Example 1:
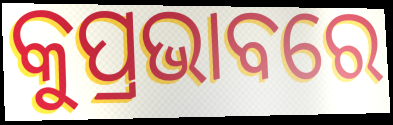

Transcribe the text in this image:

କୁପ୍ରଭାବରେ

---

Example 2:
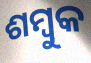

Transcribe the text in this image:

ଶମ୍ବୁକ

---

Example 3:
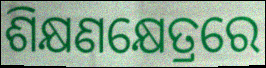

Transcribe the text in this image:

ଶିକ୍ଷଣକ୍ଷେତ୍ରରେ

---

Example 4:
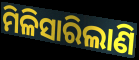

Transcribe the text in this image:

ମିଳିସାରିଲାଣି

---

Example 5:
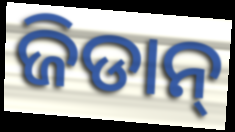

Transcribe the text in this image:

ଜିଡାନ୍